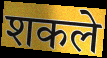
शकले